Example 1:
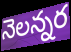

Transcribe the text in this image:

నెలన్నర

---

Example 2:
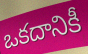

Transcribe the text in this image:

ఒకదానికీ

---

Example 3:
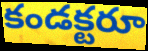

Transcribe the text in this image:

కండక్టరూ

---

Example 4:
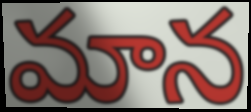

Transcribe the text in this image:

మాన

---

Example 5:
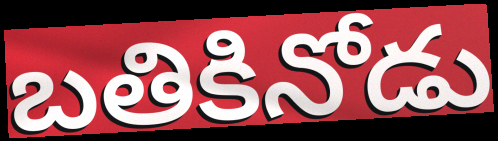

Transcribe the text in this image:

బతికినోడు